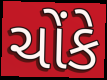
ચોંકે